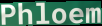
Phloem